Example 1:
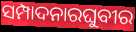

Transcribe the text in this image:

ସମ୍ପାଦନାରଘୁବୀର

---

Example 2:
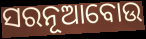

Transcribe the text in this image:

ସରନୂଆବୋଉ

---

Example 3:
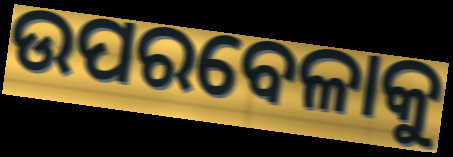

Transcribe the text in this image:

ଉପରବେଳାକୁ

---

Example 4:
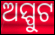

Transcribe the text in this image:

ଅସ୍ପୁଟ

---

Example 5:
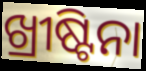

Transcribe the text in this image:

ଖ୍ରୀଷ୍ଟିନା